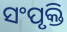
ସଂପୃକ୍ତି